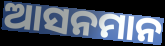
ଆସନମାନ